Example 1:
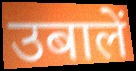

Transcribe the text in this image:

उबालें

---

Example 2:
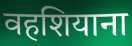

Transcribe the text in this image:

वहशियाना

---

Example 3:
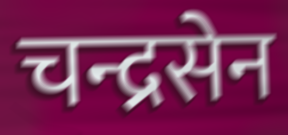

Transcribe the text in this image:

चन्द्रसेन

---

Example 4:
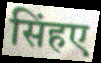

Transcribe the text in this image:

सिंहए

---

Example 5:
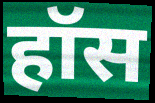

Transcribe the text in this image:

हॉस